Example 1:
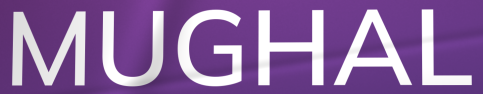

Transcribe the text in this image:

MUGHAL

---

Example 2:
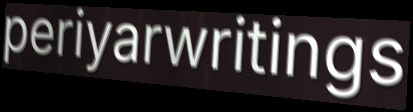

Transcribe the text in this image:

periyarwritings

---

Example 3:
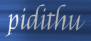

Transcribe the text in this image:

pidithu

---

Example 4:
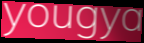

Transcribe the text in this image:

yougya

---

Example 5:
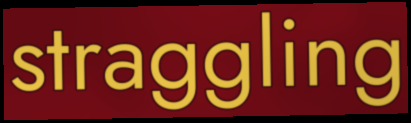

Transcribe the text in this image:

straggling